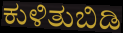
ಕುಳಿತುಬಿಡಿ